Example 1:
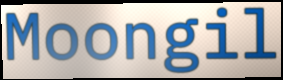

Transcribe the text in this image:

Moongil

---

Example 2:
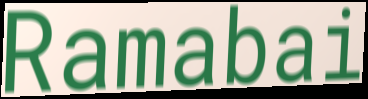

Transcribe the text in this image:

Ramabai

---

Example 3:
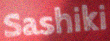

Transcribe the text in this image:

Sashiki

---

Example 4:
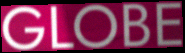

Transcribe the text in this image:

GLOBE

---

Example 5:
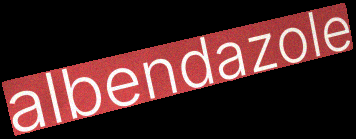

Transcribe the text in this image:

albendazole